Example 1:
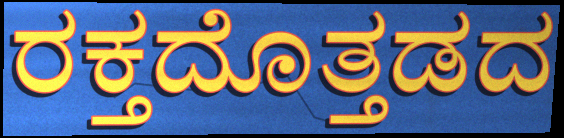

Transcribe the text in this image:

ರಕ್ತದೊತ್ತಡದ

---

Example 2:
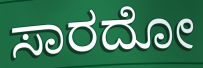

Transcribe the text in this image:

ಸಾರದೋ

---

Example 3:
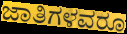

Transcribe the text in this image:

ಜಾತಿಗಳವರೂ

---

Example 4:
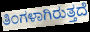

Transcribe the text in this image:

ತಿಂಗಳಾಗಿರುತ್ತದೆ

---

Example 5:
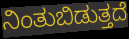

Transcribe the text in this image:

ನಿಂತುಬಿಡುತ್ತದೆ